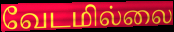
வேடமில்லை